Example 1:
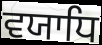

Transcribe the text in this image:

ਵਯਾਧਿ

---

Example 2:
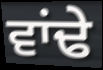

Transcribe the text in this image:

ਵਾਂਢੇ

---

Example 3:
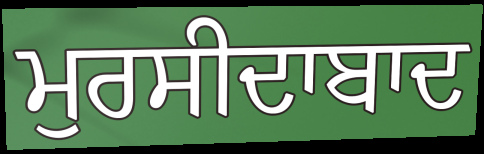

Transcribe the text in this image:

ਮੁਰਸੀਦਾਬਾਦ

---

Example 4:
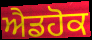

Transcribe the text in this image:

ਐਡਹੋਕ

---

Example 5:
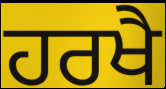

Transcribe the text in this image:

ਹਰਖੈ